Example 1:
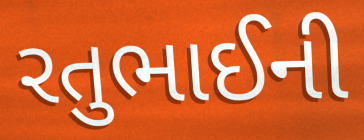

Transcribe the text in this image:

રતુભાઈની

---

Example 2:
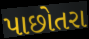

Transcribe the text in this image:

પાછોતરા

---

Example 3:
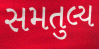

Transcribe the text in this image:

સમતુલ્ય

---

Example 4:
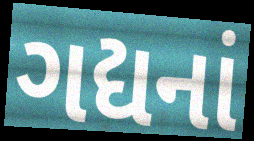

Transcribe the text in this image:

ગદ્યનાં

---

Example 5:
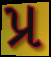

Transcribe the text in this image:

પ્ર